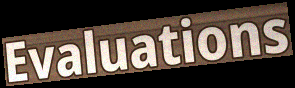
Evaluations